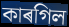
কাৰগিল